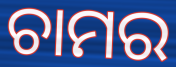
ଚାମର